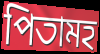
পিতামহ